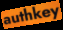
authkey